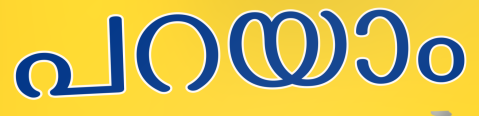
പറയാം